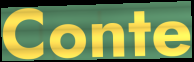
Conte